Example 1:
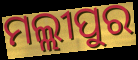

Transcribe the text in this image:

ମଲ୍ଲୀପୁର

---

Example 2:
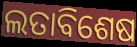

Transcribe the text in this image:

ଲତାବିଶେଷ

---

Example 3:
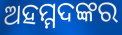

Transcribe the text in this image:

ଅହମ୍ମଦଙ୍କର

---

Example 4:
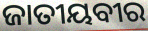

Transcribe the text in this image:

ଜାତୀୟବୀର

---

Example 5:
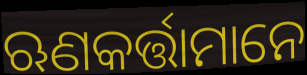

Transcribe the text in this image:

ଋଣକର୍ତ୍ତାମାନେ